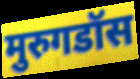
मुरुगडॉस